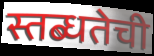
स्तब्धतेची